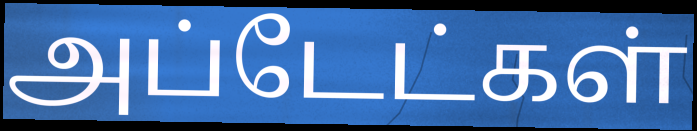
அப்டேட்கள்